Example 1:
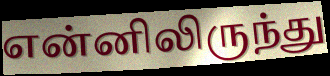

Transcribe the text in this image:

என்னிலிருந்து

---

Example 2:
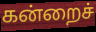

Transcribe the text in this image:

கன்றைச்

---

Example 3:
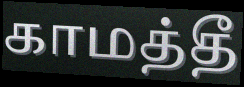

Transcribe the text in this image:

காமத்தீ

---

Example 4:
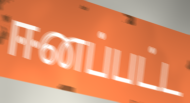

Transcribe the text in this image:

ஈனப்பட்ட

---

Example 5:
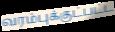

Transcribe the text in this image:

வரம்புக்குட்பட்ட